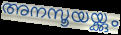
അനസൂയയ്ക്കും